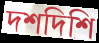
দশদিশি